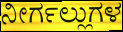
ನೀರ್ಗಲ್ಲುಗಳ